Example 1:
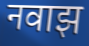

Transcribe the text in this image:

नवाझ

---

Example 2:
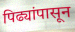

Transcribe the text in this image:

पिढ्यांपासून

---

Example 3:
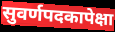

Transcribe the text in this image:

सुवर्णपदकापेक्षा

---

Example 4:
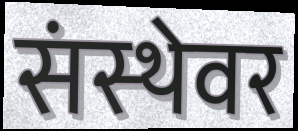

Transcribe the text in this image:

संस्थेवर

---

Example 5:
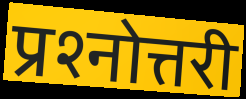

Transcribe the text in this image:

प्रश्नोत्तरी